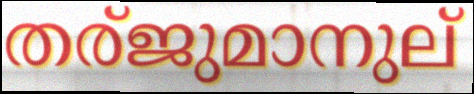
തര്ജുമാനുല്